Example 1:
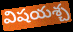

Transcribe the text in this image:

విషయశ్చ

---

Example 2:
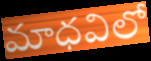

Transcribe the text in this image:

మాధవిలో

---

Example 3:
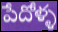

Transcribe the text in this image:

పేదోళ్ళ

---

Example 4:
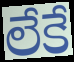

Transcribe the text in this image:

లేకే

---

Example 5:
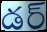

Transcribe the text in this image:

డర్